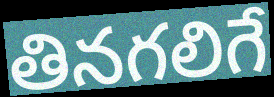
తినగలిగే